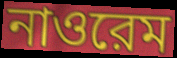
নাওরেম